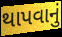
થાપવાનું